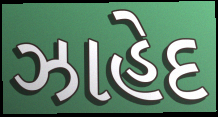
ઝાહેદ